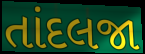
તાંદલજા